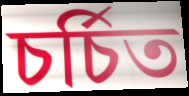
চৰ্চিত